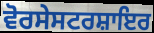
ਵੋਰਸੇਸਟਰਸ਼ਾਇਰ